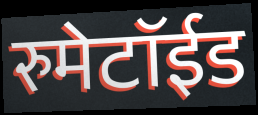
रुमेटॉईड